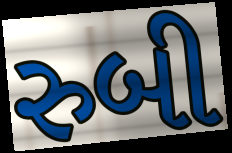
રુબી